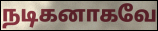
நடிகனாகவே